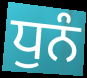
ਧੁਨੰ